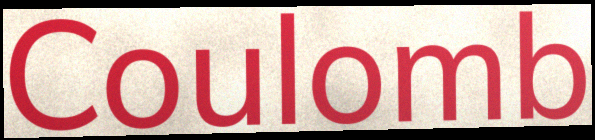
Coulomb